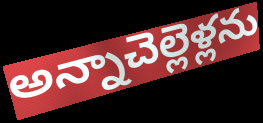
అన్నాచెల్లెళ్లను